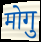
मोगु